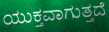
ಯುಕ್ತವಾಗುತ್ತದೆ